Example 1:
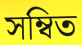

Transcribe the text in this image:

সম্বিত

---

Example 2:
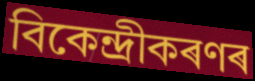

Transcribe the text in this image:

বিকেন্দ্ৰীকৰণৰ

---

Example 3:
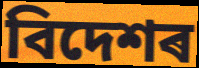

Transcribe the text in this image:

বিদেশৰ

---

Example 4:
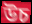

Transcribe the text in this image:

উচ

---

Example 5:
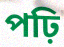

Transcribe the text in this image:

পঢ়ি